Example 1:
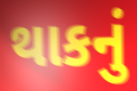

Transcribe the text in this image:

થાકનું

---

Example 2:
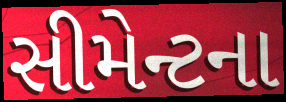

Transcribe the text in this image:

સીમેન્ટના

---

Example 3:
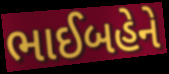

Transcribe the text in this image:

ભાઈબહેને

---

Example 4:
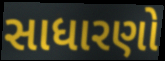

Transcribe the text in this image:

સાધારણો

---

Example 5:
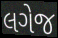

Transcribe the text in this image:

લગેજ